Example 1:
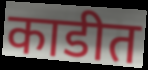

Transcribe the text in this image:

काडीत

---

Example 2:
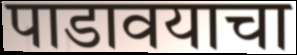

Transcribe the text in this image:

पाडावयाचा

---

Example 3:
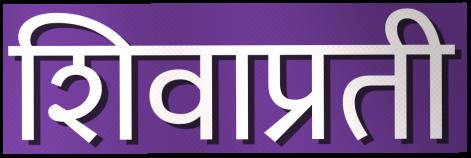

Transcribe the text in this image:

शिवाप्रती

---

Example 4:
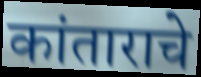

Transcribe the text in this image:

कांताराचे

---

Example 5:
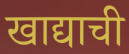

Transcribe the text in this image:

खाद्याची